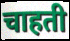
चाहती